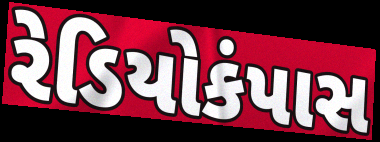
રેડિયોકંપાસ